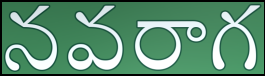
నవరాగ